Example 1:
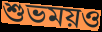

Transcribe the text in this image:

শুভময়ও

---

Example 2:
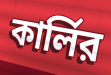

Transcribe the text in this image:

কার্লির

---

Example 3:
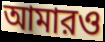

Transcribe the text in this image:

আমারও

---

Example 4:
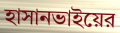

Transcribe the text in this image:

হাসানভাইয়ের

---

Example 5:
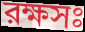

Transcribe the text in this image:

রক্ষসঃ